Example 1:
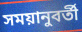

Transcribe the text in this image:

সময়ানুবর্তী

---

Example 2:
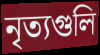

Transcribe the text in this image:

নৃত্যগুলি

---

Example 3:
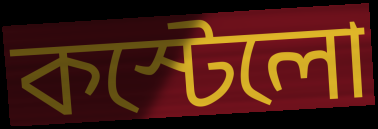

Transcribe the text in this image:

কস্টেলো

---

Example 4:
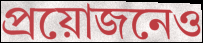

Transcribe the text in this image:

প্রয়োজনেও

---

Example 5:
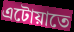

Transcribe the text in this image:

এটোয়াতে